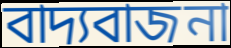
বাদ্যবাজনা